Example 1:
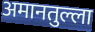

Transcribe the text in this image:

अमानतुल्ला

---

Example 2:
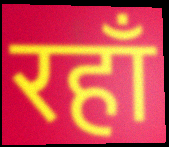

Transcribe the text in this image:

रहाँ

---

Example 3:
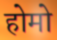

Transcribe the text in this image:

होमो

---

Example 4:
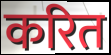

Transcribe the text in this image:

करित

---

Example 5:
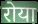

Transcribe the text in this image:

रोया